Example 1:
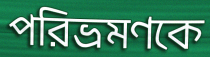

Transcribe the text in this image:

পরিভ্রমণকে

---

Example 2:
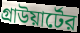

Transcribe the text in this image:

গ্রাউয়ার্টের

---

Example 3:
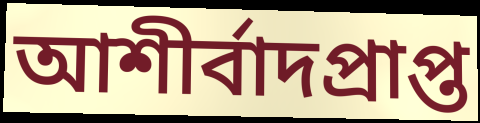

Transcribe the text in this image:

আশীর্বাদপ্রাপ্ত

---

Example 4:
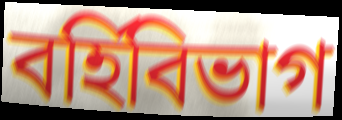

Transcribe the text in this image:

বর্হিবিভাগ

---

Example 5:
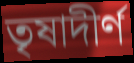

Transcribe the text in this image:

তৃষাদীর্ণ